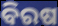
ବିରଷ